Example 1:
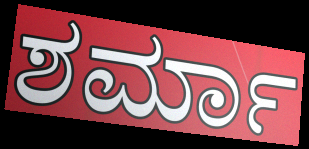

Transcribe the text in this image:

ಶರ್ಮಾ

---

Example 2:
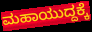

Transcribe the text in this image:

ಮಹಾಯುದ್ದಕ್ಕೆ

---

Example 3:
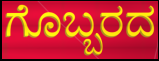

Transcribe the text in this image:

ಗೊಬ್ಬರದ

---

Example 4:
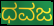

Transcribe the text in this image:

ಧವಜ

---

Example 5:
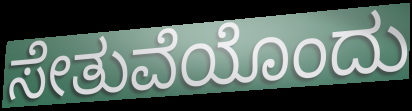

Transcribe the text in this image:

ಸೇತುವೆಯೊಂದು